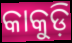
କାକୁଡ଼ି